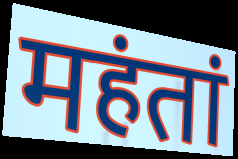
महंतां